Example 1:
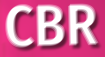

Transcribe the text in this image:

CBR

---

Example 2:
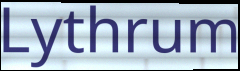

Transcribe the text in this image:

Lythrum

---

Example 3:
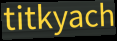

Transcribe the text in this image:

titkyach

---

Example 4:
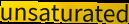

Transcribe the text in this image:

unsaturated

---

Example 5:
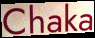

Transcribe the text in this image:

Chaka